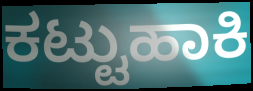
ಕಟ್ಟುಹಾಕಿ